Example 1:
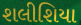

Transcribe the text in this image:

શલીશિયા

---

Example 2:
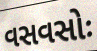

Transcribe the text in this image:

વસવસોઃ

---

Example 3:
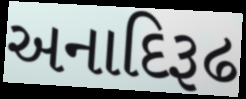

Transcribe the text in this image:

અનાદિરૂઢ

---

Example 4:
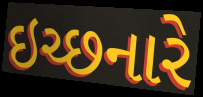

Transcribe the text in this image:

ઇચ્છનારે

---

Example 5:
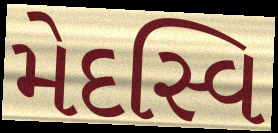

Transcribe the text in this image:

મેદસ્વિ